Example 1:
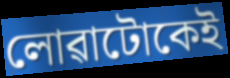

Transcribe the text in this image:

লোৱাটোকেই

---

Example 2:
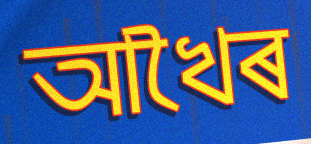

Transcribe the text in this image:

আখৈৰ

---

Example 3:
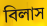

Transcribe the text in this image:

বিলাস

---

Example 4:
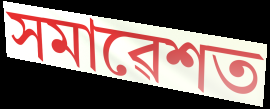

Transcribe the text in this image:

সমাৱেশত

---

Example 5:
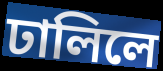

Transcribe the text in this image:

ঢালিলে